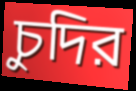
চুদির